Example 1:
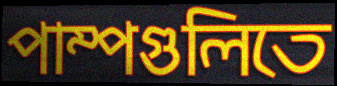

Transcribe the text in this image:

পাম্পগুলিতে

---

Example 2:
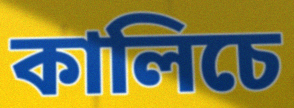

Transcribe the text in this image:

কালিচে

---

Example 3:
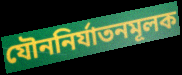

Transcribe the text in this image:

যৌননির্যাতনমূলক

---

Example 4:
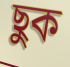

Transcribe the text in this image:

ছুক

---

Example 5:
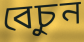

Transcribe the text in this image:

বেচুন